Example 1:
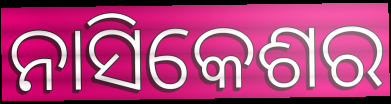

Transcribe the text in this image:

ନାସିକେଶର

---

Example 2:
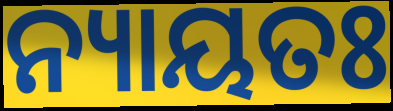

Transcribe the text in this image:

ନ୍ୟାୟତଃ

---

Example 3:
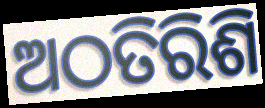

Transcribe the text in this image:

ଅଠତିରିଶି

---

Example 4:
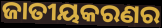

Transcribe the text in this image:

ଜାତୀୟକରଣର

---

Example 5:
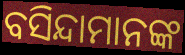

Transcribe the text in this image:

ବସିନ୍ଦାମାନଙ୍କ